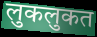
लुकलुकत